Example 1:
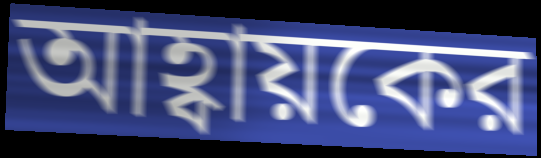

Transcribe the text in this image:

আহ্বায়কের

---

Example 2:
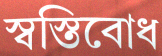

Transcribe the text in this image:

স্বস্তিবোধ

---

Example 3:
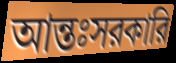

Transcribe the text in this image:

আন্তঃসরকারি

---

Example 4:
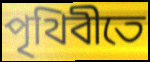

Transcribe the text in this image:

পৃথিবীতে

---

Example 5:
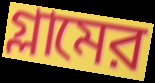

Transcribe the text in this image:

গ্লামের